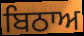
ਬਿਠਾਅ